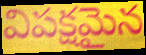
విపక్షమైన